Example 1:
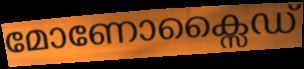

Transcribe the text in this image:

മോണോക്സൈഡ്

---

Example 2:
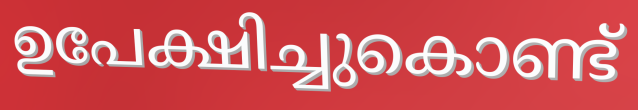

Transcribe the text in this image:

ഉപേക്ഷിച്ചുകൊണ്ട്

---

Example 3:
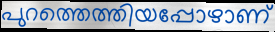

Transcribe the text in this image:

പുറത്തെത്തിയപ്പോഴാണ്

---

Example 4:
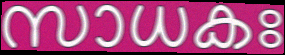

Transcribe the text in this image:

സാധകഃ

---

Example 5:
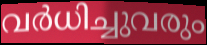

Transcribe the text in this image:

വർധിച്ചുവരും